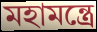
মহামন্ত্রে